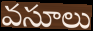
వసూలు